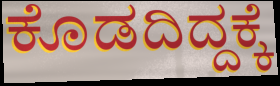
ಕೊಡದಿದ್ದಕ್ಕೆ